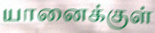
யானைக்குள்